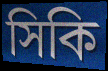
সিকি